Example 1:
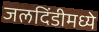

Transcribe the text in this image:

जलदिंडीमध्ये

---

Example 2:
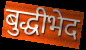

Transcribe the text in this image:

बुद्धीभेद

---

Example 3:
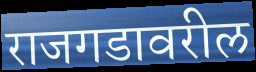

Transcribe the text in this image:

राजगडावरील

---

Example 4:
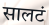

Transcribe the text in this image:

सालटं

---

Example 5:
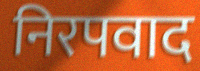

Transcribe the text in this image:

निरपवाद